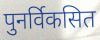
पुनर्विकसित